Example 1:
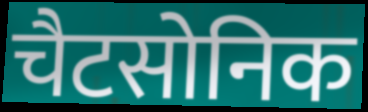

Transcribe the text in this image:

चैटसोनिक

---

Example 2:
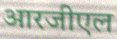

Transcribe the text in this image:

आरजीएल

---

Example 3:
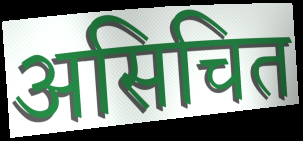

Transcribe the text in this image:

असिचित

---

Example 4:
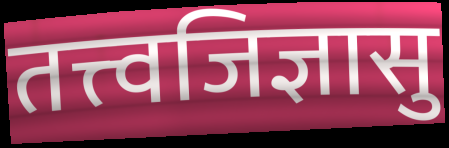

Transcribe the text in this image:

तत्त्वजिज्ञासु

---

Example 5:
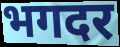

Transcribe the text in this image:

भगदर